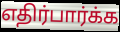
எதிர்பார்க்க